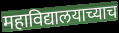
महाविद्यालयाच्याच